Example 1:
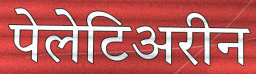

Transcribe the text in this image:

पेलेटिअरीन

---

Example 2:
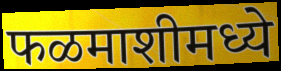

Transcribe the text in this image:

फळमाशीमध्ये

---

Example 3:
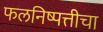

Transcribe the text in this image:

फलनिष्पत्तीचा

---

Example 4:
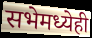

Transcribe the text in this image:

सभेमध्येही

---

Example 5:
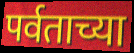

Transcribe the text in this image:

पर्वताच्या